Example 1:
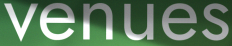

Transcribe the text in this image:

venues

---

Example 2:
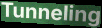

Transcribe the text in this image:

Tunneling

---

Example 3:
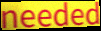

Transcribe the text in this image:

needed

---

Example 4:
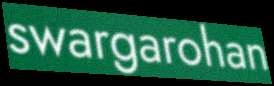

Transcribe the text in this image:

swargarohan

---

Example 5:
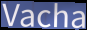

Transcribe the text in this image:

Vacha